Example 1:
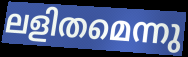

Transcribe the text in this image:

ലളിതമെന്നു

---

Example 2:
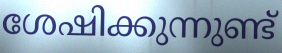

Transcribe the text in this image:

ശേഷിക്കുന്നുണ്ട്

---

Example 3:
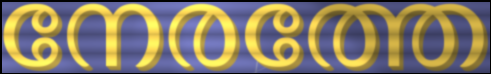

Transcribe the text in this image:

നേരത്തേ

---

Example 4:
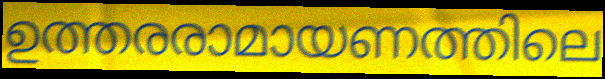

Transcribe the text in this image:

ഉത്തരരാമായണത്തിലെ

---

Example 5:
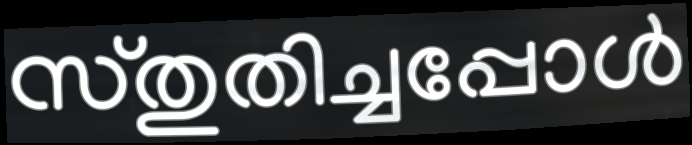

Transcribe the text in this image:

സ്തുതിച്ചപ്പോൾ